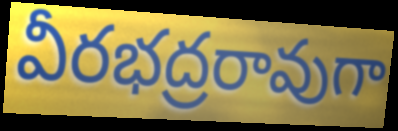
వీరభద్రరావుగా